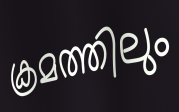
ക്രമത്തിലും